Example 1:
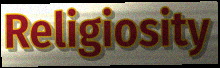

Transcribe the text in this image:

Religiosity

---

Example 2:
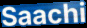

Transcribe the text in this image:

Saachi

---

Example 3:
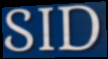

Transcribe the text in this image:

SID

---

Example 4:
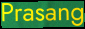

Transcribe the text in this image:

Prasang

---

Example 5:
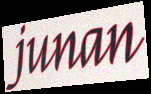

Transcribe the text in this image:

junan